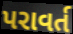
પરાવર્ત